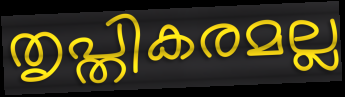
തൃപ്തികരമല്ല